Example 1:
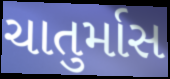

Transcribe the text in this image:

ચાતુર્માસ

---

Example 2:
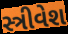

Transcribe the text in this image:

સ્ત્રીવેશ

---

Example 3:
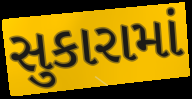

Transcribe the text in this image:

સુકારામાં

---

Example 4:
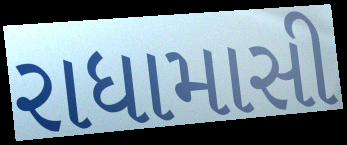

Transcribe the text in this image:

રાધામાસી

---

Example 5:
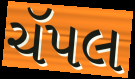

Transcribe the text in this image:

ચૅપલ